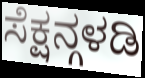
ಸೆಕ್ಷನ್ಗಳಡಿ